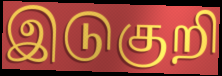
இடுகுறி